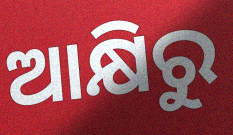
ଆକ୍ଷିରୁ